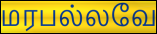
மரபல்லவே